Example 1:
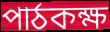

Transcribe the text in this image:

পাঠকক্ষ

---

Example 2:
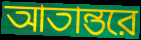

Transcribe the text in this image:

আতান্তরে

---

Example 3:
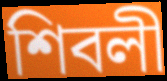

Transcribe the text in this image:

শিবলী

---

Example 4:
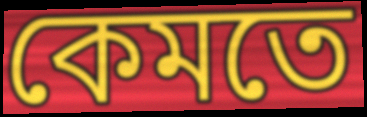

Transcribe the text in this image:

কেমতে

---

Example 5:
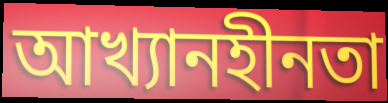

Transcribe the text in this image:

আখ্যানহীনতা